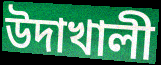
উদাখালী